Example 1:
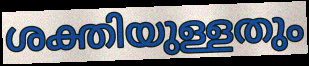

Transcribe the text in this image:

ശക്തിയുള്ളതും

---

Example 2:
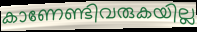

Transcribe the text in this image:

കാണേണ്ടിവരുകയില്ല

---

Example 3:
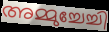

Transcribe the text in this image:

അമ്മുച്ചേച്ചി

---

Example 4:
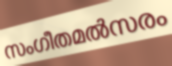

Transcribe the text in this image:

സംഗീതമൽസരം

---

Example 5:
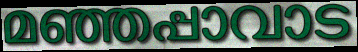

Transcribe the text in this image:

മഞ്ഞപ്പാവാട